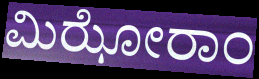
ಮಿಝೋರಾಂ